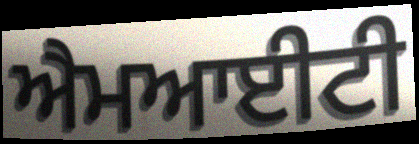
ਐਮਆਈਟੀ